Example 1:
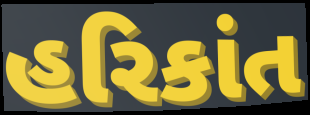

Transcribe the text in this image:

હરિકાંત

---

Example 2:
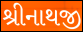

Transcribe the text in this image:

શ્રીનાથજી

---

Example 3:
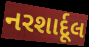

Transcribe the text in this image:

નરશાર્દૂલ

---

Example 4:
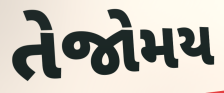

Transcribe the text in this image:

તેજોમય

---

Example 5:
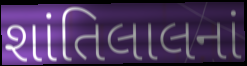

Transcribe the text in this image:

શાંતિલાલનાં